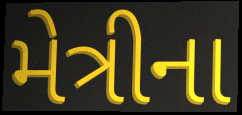
મેત્રીના